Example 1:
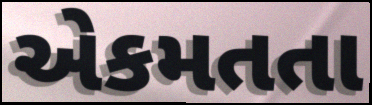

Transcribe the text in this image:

એકમતતા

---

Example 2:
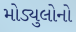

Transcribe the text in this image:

મોડ્યુલોનો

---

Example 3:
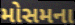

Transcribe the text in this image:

મોસમના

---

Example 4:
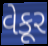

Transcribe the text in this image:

વેકૂર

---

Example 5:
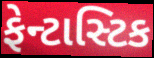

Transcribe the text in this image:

ફેન્ટાસ્ટિક